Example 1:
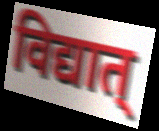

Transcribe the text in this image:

विद्यात्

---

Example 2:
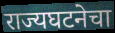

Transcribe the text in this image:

राज्यघटनेचा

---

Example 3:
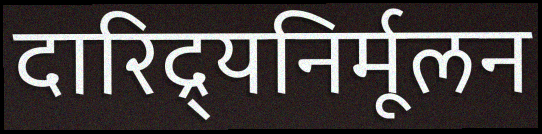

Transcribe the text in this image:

दारिद्र्यनिर्मूलन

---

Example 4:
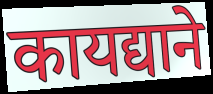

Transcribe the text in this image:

कायद्याने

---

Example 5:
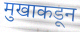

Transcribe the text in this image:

मुखाकडून